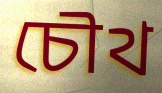
চৌথ